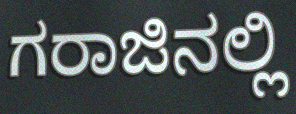
ಗರಾಜಿನಲ್ಲಿ